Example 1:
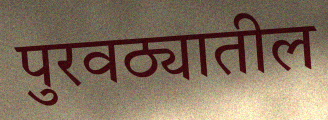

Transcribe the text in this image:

पुरवठ्यातील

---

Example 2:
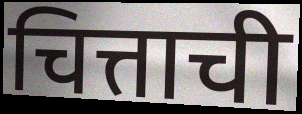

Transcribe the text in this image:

चित्ताची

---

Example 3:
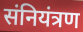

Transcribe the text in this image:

संनियंत्रण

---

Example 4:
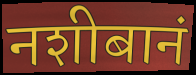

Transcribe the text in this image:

नशीबानं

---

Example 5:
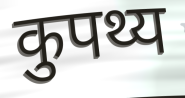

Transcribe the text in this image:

कुपथ्य